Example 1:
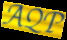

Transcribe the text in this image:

AQP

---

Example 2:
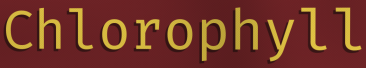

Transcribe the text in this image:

Chlorophyll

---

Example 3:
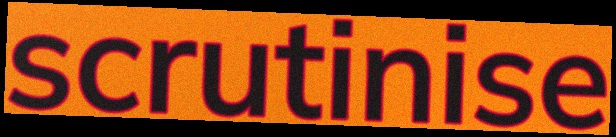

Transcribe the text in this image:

scrutinise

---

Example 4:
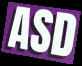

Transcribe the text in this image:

ASD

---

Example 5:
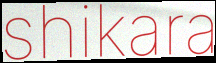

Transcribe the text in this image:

shikara